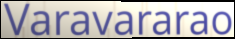
Varavararao